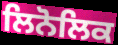
ਲਿਨੋਲਿਕ